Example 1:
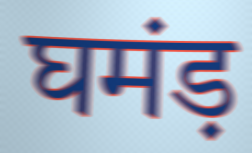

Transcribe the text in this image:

घमंड़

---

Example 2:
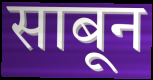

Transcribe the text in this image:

साबून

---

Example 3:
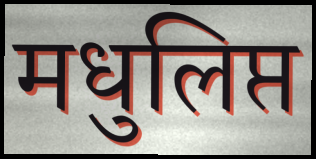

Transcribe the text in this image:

मधुलिप्त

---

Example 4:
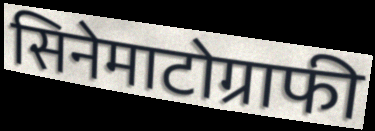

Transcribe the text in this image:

सिनेमाटोग्राफी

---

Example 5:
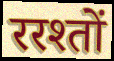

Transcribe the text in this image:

ररश्तों